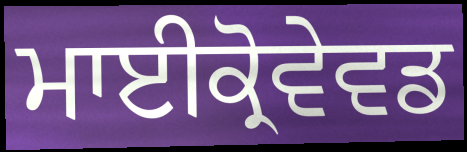
ਮਾਈਕ੍ਰੋਵੇਵਡ